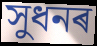
সুধনৰ